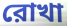
রোখা